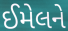
ઈમેલને